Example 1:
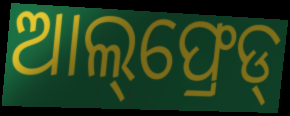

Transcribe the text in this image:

ଆଲ୍‌ଫ୍ରେଡ୍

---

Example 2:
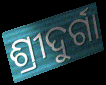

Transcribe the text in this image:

ଶ୍ରୀଦୁର୍ଗା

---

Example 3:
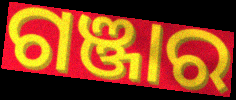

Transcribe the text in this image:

ଗଞ୍ଜାର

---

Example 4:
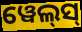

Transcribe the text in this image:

ୱେଲ୍‌ସ୍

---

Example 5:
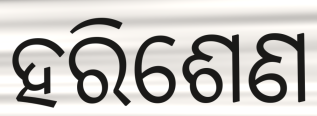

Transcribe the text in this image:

ହରିଶେଣ